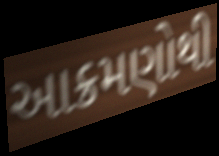
આક્રમણોથી